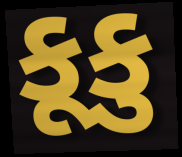
કૂકુ